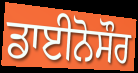
ਡਾਈਨੋਸੌਰ